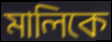
মালিকে